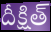
దీక్షిత్